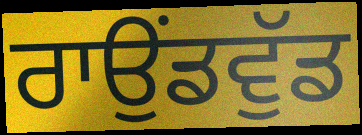
ਰਾਉਂਡਵੁੱਡ